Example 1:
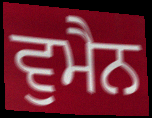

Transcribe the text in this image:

ਵੁਮੈਨ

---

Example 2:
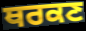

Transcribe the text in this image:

ਥਰਕਣ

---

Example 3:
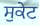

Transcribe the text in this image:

ਸੁਕੇਟ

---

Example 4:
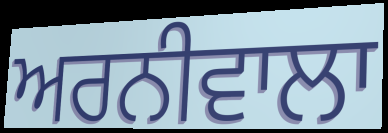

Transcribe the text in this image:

ਅਰਨੀਵਾਲਾ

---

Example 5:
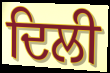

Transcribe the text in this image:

ਦਿਲੀ